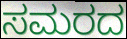
ಸಮರದ